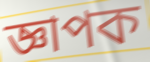
জ্ঞাপক